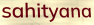
sahityana